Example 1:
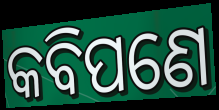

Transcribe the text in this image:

କବିପଣେ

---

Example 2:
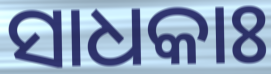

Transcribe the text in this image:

ସାଧକାଃ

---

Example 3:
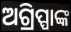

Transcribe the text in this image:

ଅଗ୍ରିପ୍ପାଙ୍କ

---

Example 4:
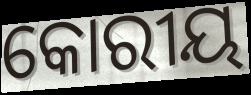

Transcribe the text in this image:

କୋରୀୟ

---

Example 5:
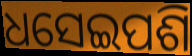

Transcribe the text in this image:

ଧସେଇପଶି